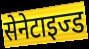
सेनेटाइज्ड